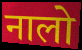
नालो